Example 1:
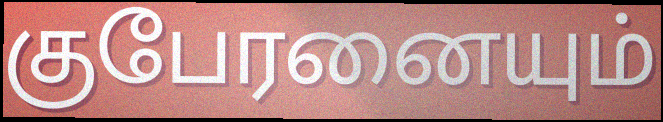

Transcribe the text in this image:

குபேரனையும்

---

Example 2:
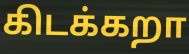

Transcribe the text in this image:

கிடக்கறா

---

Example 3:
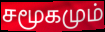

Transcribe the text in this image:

சமூகமும்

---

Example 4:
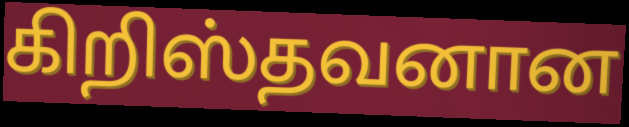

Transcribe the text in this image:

கிறிஸ்தவனான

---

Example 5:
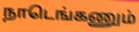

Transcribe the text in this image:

நாடெங்கணும்